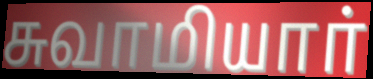
சுவாமியார்